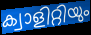
ക്വാളിറ്റിയും